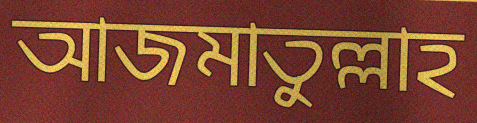
আজমাতুল্লাহ